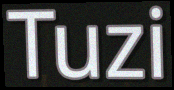
Tuzi